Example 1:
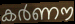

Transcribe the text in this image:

കർണൗ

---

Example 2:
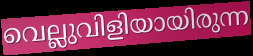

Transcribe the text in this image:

വെല്ലുവിളിയായിരുന്ന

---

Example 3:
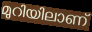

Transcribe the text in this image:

മുറിയിലാണ്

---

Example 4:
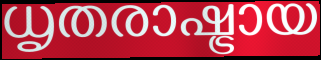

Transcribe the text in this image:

ധൃതരാഷ്ട്രായ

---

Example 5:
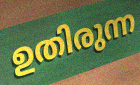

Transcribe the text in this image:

ഉതിരുന്ന